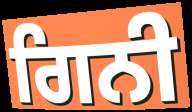
ਗਿਨੀ